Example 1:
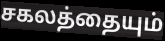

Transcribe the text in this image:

சகலத்தையும்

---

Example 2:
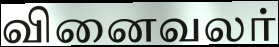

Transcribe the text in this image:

வினைவலர்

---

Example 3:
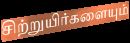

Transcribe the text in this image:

சிற்றுயிர்களையும்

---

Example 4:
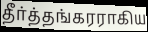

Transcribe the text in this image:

தீர்த்தங்கரராகிய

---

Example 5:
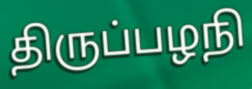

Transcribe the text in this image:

திருப்பழநி